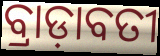
ବ୍ରାଡ଼ାବତୀ